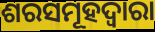
ଶରସମୂହଦ୍ୱାରା